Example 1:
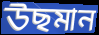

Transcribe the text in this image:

উছমান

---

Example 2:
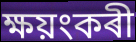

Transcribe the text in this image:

ক্ষয়ংকৰী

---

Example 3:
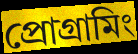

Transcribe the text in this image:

প্ৰোগ্ৰামিং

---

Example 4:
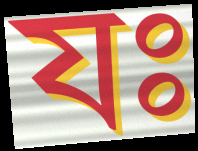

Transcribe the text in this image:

যঃ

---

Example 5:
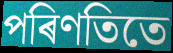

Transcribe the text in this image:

পৰিণতিতে